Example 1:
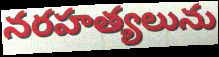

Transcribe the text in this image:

నరహత్యలును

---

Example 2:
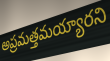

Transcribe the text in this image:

అప్రమత్తమయ్యారని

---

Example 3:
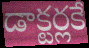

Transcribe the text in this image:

డాక్టర్లకే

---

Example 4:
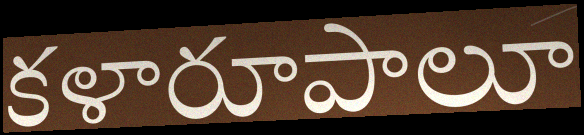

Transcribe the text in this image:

కళారూపాలూ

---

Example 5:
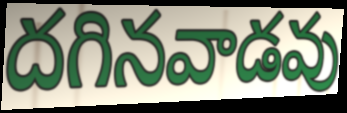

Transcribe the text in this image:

దగినవాడవు